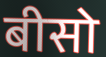
बीसो